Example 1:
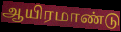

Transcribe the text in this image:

ஆயிரமாண்டு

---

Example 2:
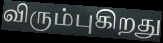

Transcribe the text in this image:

விரும்புகிறது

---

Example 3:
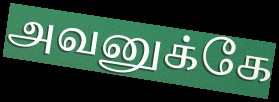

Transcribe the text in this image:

அவனுக்கே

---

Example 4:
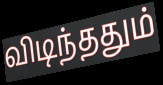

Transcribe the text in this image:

விடிந்ததும்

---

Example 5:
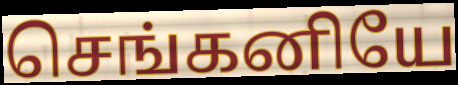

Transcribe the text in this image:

செங்கனியே